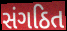
સંગઠિત